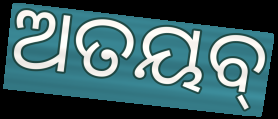
ଅତୟବ୍